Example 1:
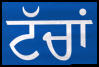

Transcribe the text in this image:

ਟੱਚਾਂ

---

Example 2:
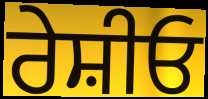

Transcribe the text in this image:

ਰੇਸ਼ੀਓ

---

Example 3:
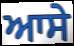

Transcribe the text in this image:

ਆਸੇ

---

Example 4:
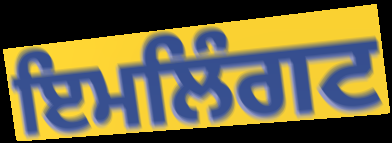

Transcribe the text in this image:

ਇਮਲਿੰਗਟ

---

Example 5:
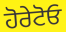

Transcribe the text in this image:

ਹੋਰੇਟੋਓ